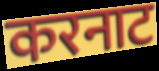
करनाट